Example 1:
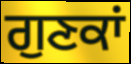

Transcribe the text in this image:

ਗੁਣਕਾਂ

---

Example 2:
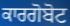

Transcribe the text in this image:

ਕਾਰਗੋਬੋਟ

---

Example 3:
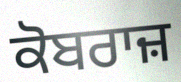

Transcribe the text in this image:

ਕੋਬਰਾਜ਼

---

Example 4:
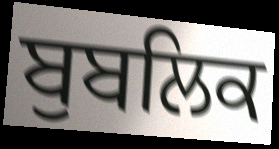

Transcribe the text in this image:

ਬੁਬਲਿਕ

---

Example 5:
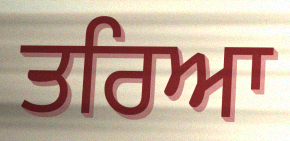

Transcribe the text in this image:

ਤਰਿਆ